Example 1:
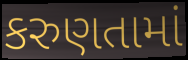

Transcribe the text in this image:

કરુણતામાં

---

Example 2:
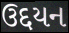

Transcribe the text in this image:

ઉદ્દયન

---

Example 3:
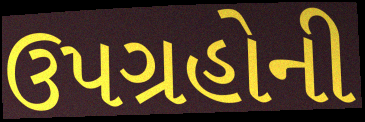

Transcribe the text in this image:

ઉપગ્રહોની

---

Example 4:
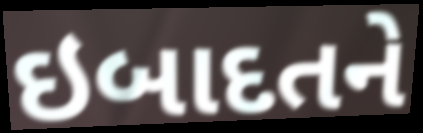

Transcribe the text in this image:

ઇબાદતને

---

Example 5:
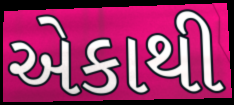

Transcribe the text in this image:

એકાથી